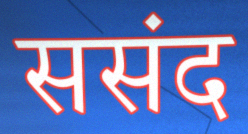
ससंद